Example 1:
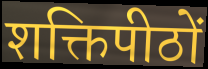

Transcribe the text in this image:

शक्तिपीठों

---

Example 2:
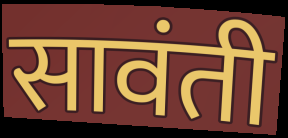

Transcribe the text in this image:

सावंती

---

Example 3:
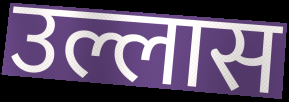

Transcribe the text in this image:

उल्लास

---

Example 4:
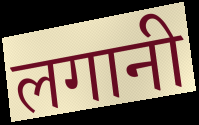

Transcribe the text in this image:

लगानी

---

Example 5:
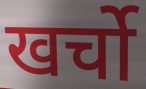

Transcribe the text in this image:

खर्चो